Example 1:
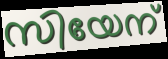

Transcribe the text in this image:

സിയേന്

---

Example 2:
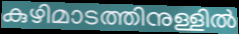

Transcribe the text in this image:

കുഴിമാടത്തിനുള്ളിൽ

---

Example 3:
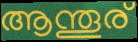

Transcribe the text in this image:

ആന്തൂര്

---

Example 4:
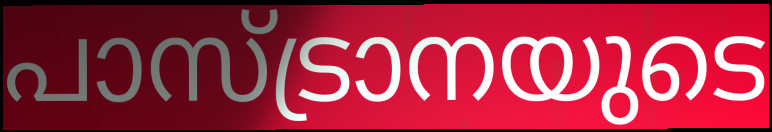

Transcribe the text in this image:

പാസ്ട്രാനയുടെ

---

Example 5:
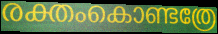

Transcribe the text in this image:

രക്തംകൊണ്ടത്രേ